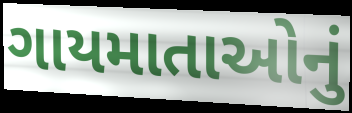
ગાયમાતાઓનું